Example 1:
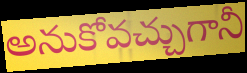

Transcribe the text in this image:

అనుకోవచ్చుగానీ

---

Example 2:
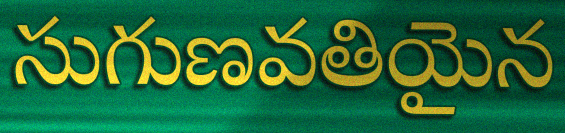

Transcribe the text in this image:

సుగుణవతియైన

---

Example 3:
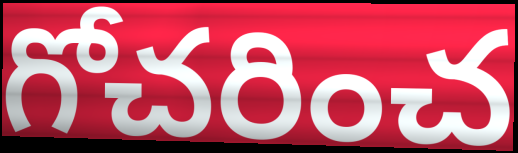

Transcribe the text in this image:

గోచరించ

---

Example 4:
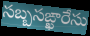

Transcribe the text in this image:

సబ్బసఙ్ఖారేసు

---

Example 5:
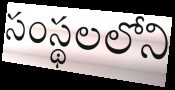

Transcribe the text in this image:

సంస్థలలోని